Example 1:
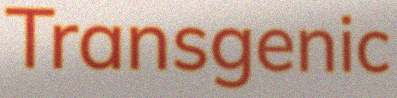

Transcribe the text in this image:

Transgenic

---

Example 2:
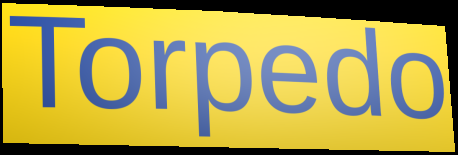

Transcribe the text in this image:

Torpedo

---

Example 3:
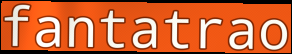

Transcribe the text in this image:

fantatrao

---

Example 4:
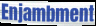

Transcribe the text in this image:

Enjambment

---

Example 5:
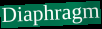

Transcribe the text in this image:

Diaphragm